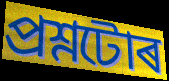
প্ৰশ্নটোৰ